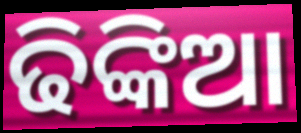
ଢିଙ୍କିଆ